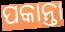
ପକାନ୍ତା